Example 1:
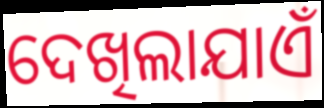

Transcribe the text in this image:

ଦେଖିଲାଯାଏଁ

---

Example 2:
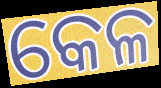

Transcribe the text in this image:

କେଳ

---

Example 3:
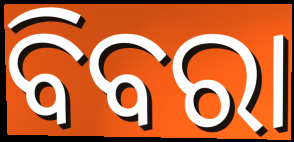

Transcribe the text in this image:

ବିବରା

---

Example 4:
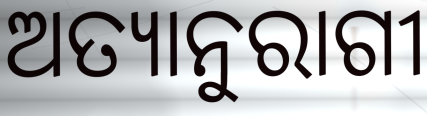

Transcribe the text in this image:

ଅତ୍ୟାନୁରାଗୀ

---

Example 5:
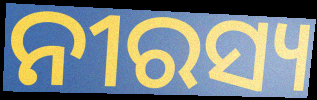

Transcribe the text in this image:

ନୀରସ୍ୟ